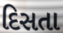
દિસતા